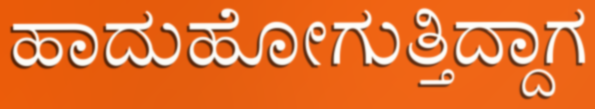
ಹಾದುಹೋಗುತ್ತಿದ್ದಾಗ